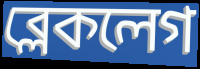
ব্লেকলেগ